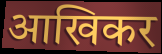
आखिकर